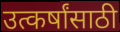
उत्कर्षांसाठी